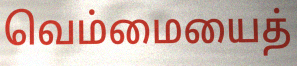
வெம்மையைத்